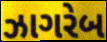
ઝાગરેબ